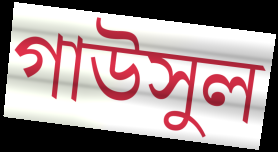
গাউসুল